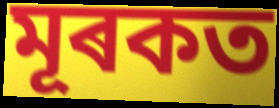
মূৰকত